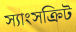
স্যাংসক্রিট